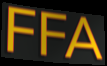
FFA